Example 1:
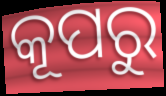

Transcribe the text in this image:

କୂପରୁ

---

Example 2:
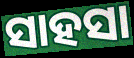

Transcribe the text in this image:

ସାହସା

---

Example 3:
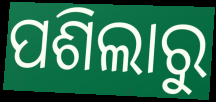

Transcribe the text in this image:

ପଶିଲାରୁ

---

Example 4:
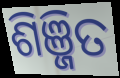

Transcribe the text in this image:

ଶିଞ୍ଜିତ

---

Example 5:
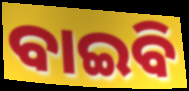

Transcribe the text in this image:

ବାଇବି